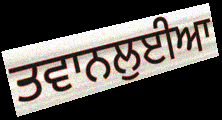
ਤਵਾਨਲੁਈਆ